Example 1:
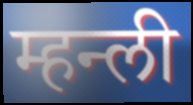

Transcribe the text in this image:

म्हन्ली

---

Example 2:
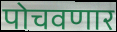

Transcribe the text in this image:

पोचवणार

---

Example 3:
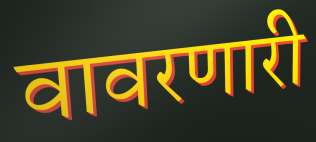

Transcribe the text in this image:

वावरणारी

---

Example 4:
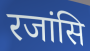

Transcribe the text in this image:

रजांसि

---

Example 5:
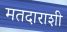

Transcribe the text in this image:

मतदाराशी